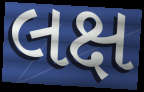
લક્ષ